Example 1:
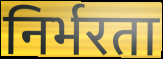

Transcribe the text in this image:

निर्भरता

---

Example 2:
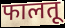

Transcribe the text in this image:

फालतू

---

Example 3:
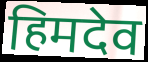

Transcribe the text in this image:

हिमदेव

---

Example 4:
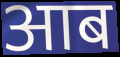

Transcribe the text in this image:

आब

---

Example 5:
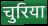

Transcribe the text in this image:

चुरिया